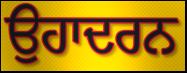
ਉਹਾਦਰਨ